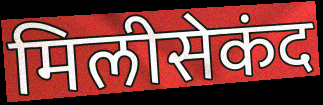
मिलीसेकंद